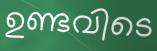
ഉണ്ടവിടെ